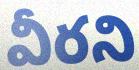
వీరని